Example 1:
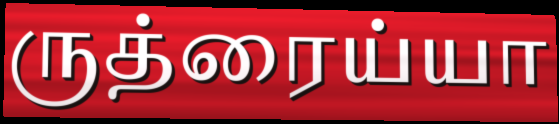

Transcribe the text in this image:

ருத்ரைய்யா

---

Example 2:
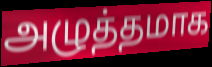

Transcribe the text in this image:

அழுத்தமாக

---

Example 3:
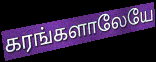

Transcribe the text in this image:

கரங்களாலேயே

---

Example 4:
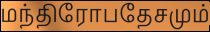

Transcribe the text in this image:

மந்திரோபதேசமும்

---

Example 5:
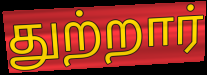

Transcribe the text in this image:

துற்றார்